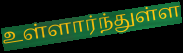
உள்ளார்ந்துள்ள